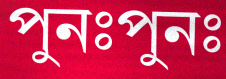
পুনঃপুনঃ